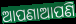
ଆପଣାଆପଣି